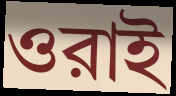
ওরাই